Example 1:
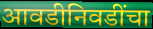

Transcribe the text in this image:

आवडीनिवडींचा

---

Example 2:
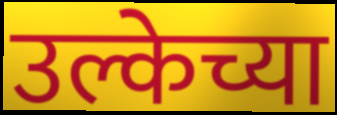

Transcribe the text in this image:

उल्केच्या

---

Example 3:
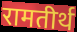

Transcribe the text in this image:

रामतीर्थ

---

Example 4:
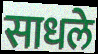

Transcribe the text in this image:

साधले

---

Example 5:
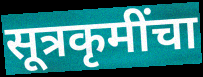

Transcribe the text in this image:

सूत्रकृमींचा